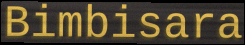
Bimbisara